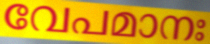
വേപമാനഃ